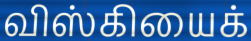
விஸ்கியைக்